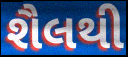
શૈલથી